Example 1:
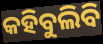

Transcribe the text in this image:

କହିବୁଲିବି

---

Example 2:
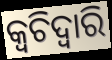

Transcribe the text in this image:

କ୍ଵଚିଦ୍ୱାରି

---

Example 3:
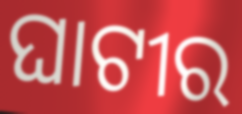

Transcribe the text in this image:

ଘାଟୀର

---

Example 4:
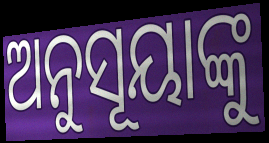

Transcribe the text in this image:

ଅନୁସୂୟାଙ୍କୁ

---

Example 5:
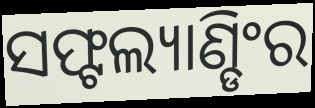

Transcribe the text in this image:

ସଫ୍ଟଲ୍ୟାଣ୍ଡିଂର